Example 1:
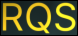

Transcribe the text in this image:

RQS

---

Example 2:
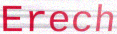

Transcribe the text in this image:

Erech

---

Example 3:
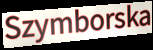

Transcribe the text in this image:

Szymborska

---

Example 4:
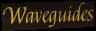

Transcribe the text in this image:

Waveguides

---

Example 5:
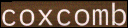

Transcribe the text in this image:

coxcomb